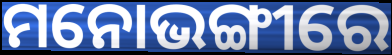
ମନୋଭଙ୍ଗୀରେ